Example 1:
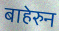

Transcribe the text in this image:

बाहेरुन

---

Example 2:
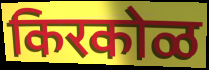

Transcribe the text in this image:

किरकोळ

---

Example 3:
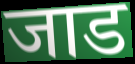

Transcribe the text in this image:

जाड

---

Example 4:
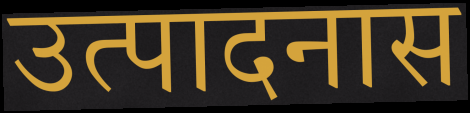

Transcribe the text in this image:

उत्पादनास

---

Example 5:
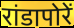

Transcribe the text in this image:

रांडापोरें